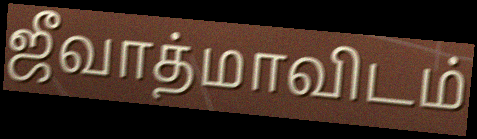
ஜீவாத்மாவிடம்